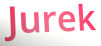
Jurek